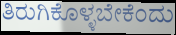
ತಿರುಗಿಕೊಳ್ಳಬೇಕೆಂದು